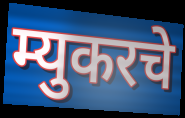
म्युकरचे